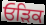
ਓੜਿਕ